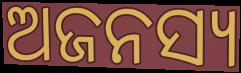
ଅଜନସ୍ୟ